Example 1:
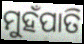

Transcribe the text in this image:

ମୁହଁପାତି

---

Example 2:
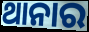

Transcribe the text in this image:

ଥାନାର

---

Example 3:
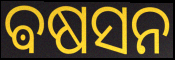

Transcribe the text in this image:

ଵଷସନ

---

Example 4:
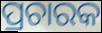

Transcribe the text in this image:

ପ୍ରଚାରକ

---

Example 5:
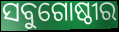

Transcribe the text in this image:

ସବୁଗୋଷ୍ଠୀର